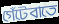
গেঁটেবাতে